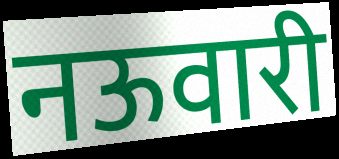
नऊवारी